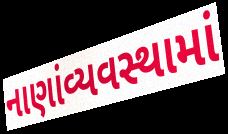
નાણાંવ્યવસ્થામાં